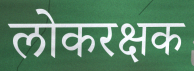
लोकरक्षक